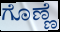
ಗೊಣ್ಣೆ